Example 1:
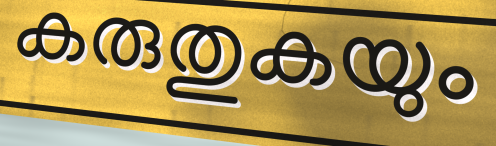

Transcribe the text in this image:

കരുതുകയും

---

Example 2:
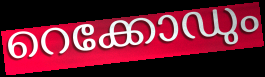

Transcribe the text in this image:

റെക്കോഡും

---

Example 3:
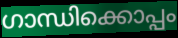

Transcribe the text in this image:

ഗാന്ധിക്കൊപ്പം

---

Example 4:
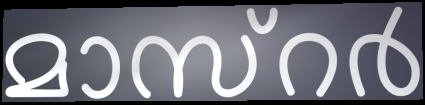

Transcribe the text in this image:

മാസ്റർ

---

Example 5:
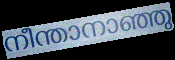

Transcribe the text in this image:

നീന്താനാഞ്ഞു